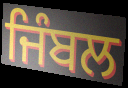
ਜਿੰਬਲ